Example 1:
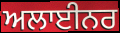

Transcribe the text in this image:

ਅਲਾਈਨਰ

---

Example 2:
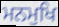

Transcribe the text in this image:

ਮਨਮੁਖਿ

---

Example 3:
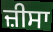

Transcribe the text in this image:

ਜ਼ੀਸਾ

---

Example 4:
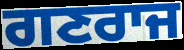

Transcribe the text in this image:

ਗਣਰਾਜ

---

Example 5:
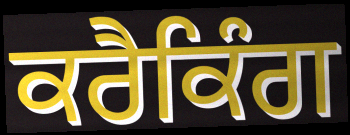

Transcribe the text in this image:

ਕਰੈਕਿੰਗ